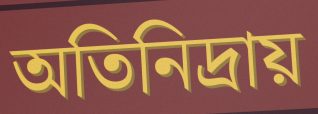
অতিনিদ্রায়